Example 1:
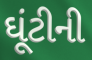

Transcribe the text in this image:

ઘૂંટીની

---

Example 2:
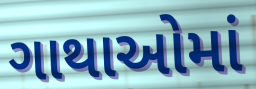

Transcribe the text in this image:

ગાથાઓમાં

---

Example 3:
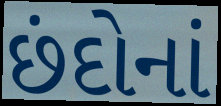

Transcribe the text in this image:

છંદોનાં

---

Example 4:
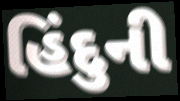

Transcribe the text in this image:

હિંદુની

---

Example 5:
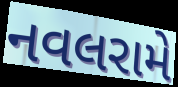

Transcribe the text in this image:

નવલરામે